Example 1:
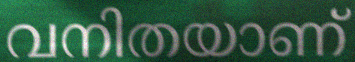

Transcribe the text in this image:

വനിതയാണ്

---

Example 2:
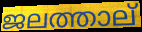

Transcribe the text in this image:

ജലത്താല്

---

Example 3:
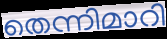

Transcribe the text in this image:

തെന്നിമാറി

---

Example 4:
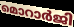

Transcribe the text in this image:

മൊറാർജി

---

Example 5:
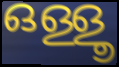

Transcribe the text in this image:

ഒള്ളൂ